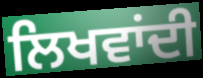
ਲਿਖਵਾਂਦੀ